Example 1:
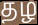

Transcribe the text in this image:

தழ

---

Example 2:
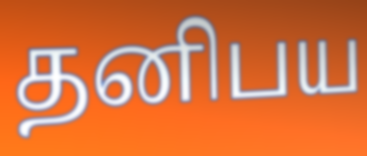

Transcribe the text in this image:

தனிபய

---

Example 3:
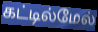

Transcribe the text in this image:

கட்டில்மேல்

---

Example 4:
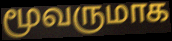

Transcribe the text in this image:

மூவருமாக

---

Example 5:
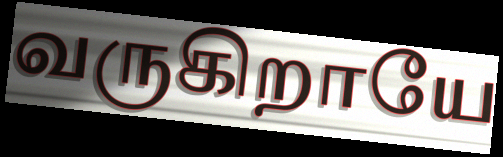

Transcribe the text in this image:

வருகிறாயே